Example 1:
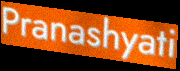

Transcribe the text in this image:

Pranashyati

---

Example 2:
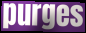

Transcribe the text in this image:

purges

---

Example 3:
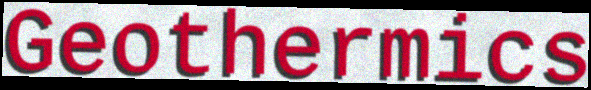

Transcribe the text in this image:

Geothermics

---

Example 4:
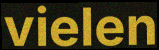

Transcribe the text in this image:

vielen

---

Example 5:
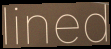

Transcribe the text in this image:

lined